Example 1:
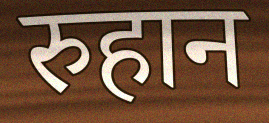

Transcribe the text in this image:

रुहान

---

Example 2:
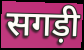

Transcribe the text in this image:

सगड़ी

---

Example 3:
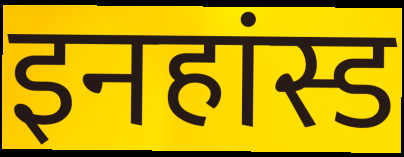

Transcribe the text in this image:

इनहांस्ड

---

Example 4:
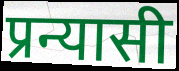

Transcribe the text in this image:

प्रन्यासी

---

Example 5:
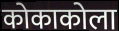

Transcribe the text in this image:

कोकाकोला